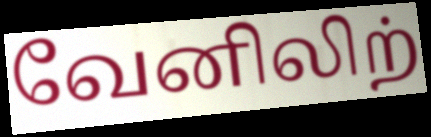
வேனிலிற்